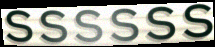
ssssss